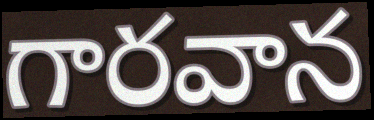
గారవాన